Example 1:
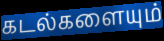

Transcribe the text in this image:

கடல்களையும்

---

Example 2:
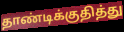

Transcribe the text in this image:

தாண்டிக்குதித்து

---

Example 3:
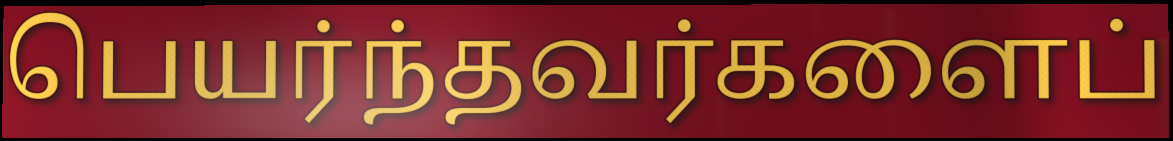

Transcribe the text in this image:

பெயர்ந்தவர்களைப்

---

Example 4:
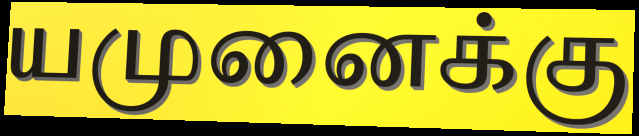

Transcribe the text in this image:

யமுனைக்கு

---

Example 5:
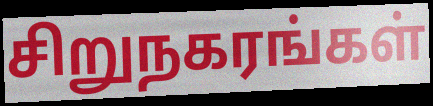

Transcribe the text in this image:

சிறுநகரங்கள்